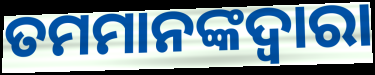
ତମମାନଙ୍କଦ୍ଵାରା